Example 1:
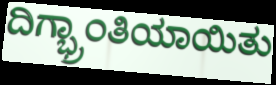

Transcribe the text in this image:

ದಿಗ್ಭ್ರಾಂತಿಯಾಯಿತು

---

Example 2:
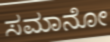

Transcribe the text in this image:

ಸಮಾನೋ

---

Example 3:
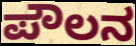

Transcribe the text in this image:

ಪೌಲನ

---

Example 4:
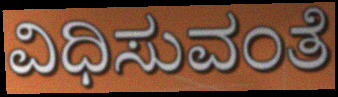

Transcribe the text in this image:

ವಿಧಿಸುವಂತೆ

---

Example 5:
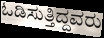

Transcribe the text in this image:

ಓಡಿಸುತ್ತಿದ್ದವರು